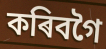
কৰিবগৈ